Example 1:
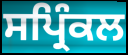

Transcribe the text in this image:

ਸਪ੍ਰਿੰਕਲ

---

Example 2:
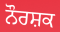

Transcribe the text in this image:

ਨੌਰਸ਼ਕ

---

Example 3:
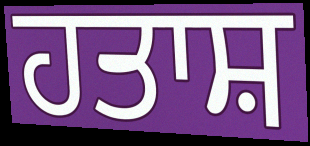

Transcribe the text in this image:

ਹਤਾਸ਼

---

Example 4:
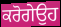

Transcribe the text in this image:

ਕਰੋਗੇਉਹ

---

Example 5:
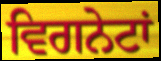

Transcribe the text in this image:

ਵਿਗਨੇਟਾਂ